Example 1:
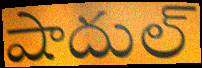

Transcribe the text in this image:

షాదుల్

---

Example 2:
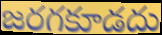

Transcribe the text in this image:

జరగకూడదు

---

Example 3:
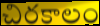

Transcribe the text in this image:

చిరకాలం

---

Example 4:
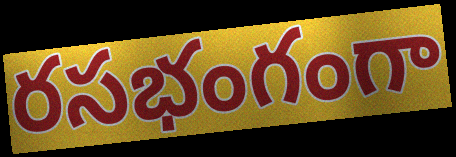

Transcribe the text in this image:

రసభంగంగా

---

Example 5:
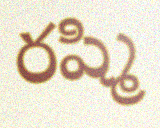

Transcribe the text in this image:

రష్మి